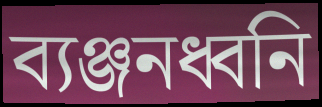
ব্যঞ্জনধ্বনি